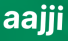
aajji